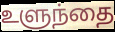
உளுந்தை